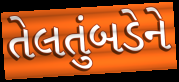
તેલતુંબડેને